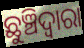
ଛୁଞ୍ଚିଦ୍ଵାରା